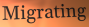
Migrating